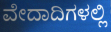
ವೇದಾದಿಗಳಲ್ಲಿ